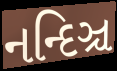
નન્દિઞ્ચ